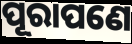
ପୂରାପଣେ